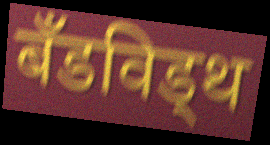
बँडविड्थ